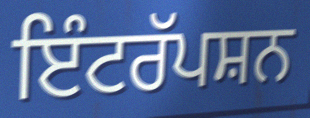
ਇੰਟਰੱਪਸ਼ਨ